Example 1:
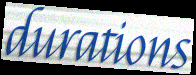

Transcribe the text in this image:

durations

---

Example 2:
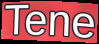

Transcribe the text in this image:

Tene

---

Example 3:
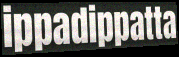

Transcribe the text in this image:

ippadippatta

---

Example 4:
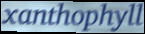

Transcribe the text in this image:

xanthophyll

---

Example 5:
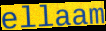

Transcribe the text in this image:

ellaam